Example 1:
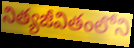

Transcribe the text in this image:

నిత్యజీవితంలోని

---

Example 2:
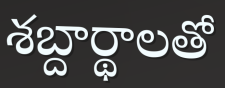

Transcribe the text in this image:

శబ్దార్థాలతో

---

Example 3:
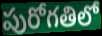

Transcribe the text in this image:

పురోగతిలో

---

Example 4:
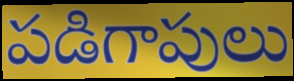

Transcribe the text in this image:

పడిగాపులు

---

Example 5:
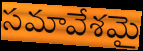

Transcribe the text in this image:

సమావేశమై